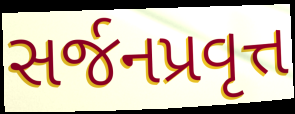
સર્જનપ્રવૃત્ત